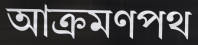
আক্রমণপথ